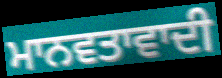
ਮਾਨਵਤਾਵਾਦੀ